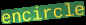
encircle